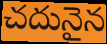
చదునైన